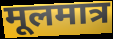
मूलमात्र